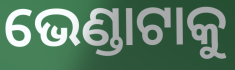
ଭେଣ୍ଡାଟାକୁ